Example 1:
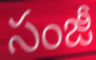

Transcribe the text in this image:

సంజీ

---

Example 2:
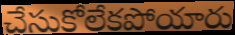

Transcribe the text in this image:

చేసుకోలేకపోయారు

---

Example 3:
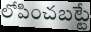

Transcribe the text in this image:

లోపించబట్టే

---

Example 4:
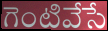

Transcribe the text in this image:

గెంటివేసే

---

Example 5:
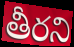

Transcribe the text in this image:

తీరని